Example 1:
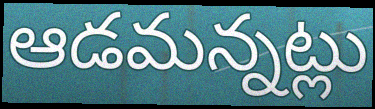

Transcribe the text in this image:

ఆడమన్నట్లు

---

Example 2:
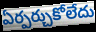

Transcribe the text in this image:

ఏర్పర్చుకోలేదు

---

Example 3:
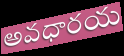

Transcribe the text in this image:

అవధారయ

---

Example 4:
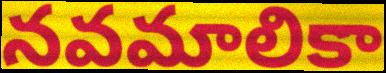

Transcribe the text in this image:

నవమాలికా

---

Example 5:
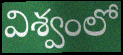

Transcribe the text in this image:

విశ్వంలో